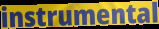
instrumental